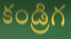
కండ్రిగ